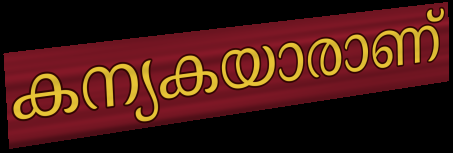
കന്യകയാരാണ്